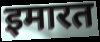
इमारत